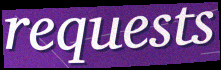
requests